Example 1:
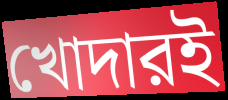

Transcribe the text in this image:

খোদারই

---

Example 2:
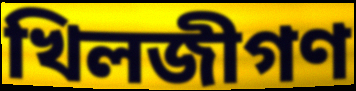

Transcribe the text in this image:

খিলজীগণ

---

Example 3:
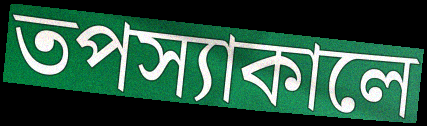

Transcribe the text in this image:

তপস্যাকালে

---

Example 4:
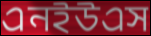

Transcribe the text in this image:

এনইউএস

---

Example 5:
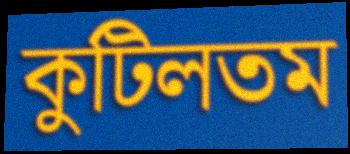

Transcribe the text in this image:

কুটিলতম